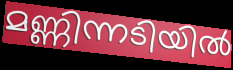
മണ്ണിന്നടിയിൽ